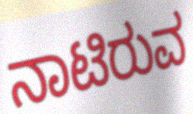
ನಾಟಿರುವ